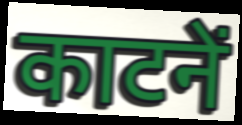
काटनें